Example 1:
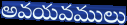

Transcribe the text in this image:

అవయవములు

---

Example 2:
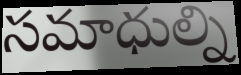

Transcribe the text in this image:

సమాధుల్ని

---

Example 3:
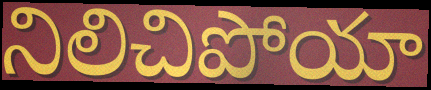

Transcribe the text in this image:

నిలిచిపోయా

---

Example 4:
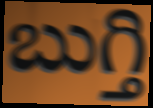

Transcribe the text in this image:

బుగ్తి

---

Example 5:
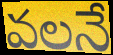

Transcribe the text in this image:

వలనే